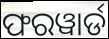
ଫରୱାର୍ଡ